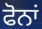
ਫੋਨਾਂ